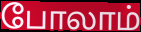
போலாம்